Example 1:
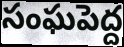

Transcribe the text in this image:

సంఘపెద్ద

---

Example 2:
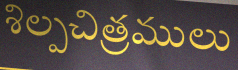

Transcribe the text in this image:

శిల్పచిత్రములు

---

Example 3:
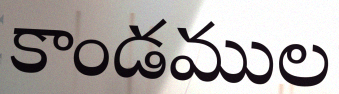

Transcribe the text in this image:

కాండముల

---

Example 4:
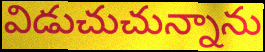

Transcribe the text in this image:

విడుచుచున్నాను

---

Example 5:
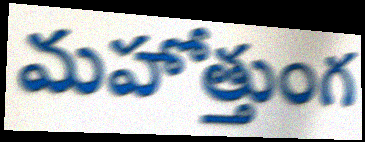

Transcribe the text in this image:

మహోత్తుంగ